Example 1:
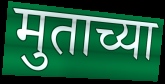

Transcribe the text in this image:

मुताच्या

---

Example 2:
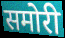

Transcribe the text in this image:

समोरी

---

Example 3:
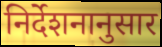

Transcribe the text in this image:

निर्देशनानुसार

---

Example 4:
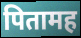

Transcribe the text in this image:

पितामह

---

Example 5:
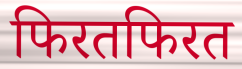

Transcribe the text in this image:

फिरतफिरत